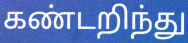
கண்டறிந்து